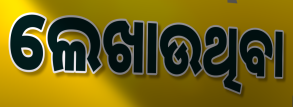
ଲେଖାଉଥିବା